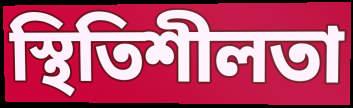
স্থিতিশীলতা